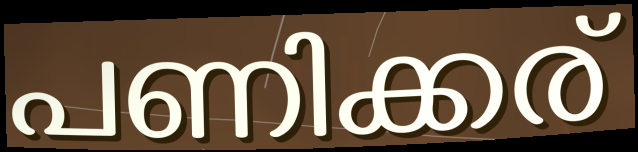
പണിക്കര്